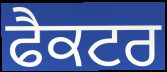
ਫੈਕਟਰ